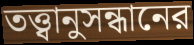
তত্ত্বানুসন্ধানের